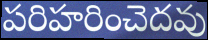
పరిహరించెదవు